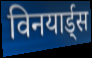
विनयार्ड्स